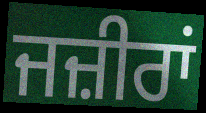
ਜਜ਼ੀਰਾਂ